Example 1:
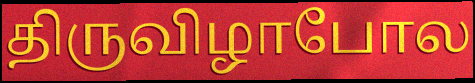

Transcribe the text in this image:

திருவிழாபோல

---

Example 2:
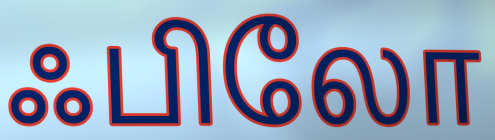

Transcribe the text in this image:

ஃபிலோ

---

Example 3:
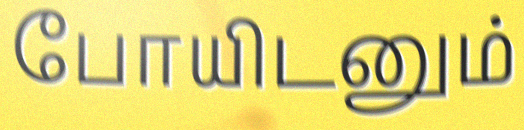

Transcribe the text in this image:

போயிடனும்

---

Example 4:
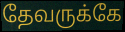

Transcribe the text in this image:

தேவருக்கே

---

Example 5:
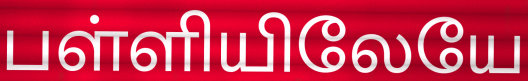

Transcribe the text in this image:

பள்ளியிலேயே